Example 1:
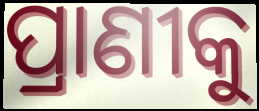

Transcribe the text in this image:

ପ୍ରାଣୀକୁ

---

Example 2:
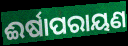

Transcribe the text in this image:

ଈର୍ଷାପରାୟଣ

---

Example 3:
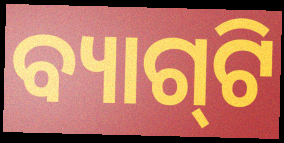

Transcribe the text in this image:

ବ୍ୟାଗ୍‌ଟି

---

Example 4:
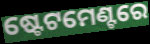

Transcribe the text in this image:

ଷ୍ଟେଟମେଣ୍ଟରେ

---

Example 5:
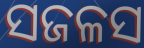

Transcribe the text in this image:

ସଜଳସ